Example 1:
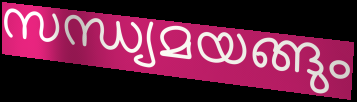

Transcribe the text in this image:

സന്ധ്യമയങ്ങും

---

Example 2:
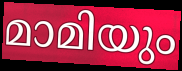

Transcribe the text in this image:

മാമിയും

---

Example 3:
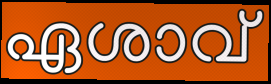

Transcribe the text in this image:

ഏശാവ്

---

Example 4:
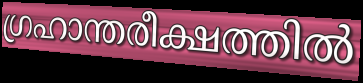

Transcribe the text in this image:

ഗ്രഹാന്തരീക്ഷത്തിൽ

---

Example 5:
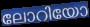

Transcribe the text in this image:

ലോറിയോ